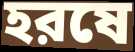
হরষে